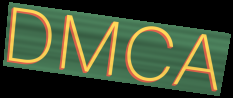
DMCA